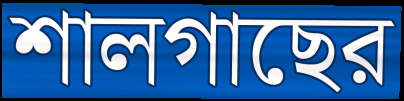
শালগাছের